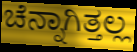
ಚೆನ್ನಾಗಿತ್ತಲ್ಲ